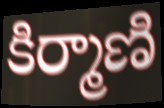
కిర్మాణి